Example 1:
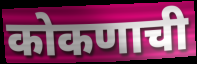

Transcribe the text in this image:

कोकणाची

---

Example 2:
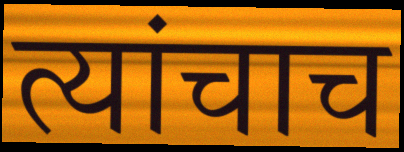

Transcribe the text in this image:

त्यांचाच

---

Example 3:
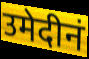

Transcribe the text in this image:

उमेदीनं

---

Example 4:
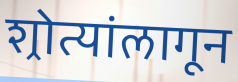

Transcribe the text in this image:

श्रोत्यांलागून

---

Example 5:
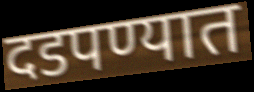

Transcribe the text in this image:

दडपण्यात